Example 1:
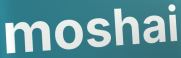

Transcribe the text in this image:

moshai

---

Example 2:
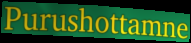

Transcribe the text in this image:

Purushottamne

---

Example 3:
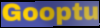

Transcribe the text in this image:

Gooptu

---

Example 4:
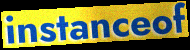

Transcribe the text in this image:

instanceof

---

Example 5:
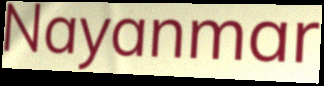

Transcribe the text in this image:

Nayanmar